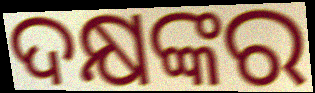
ଦକ୍ଷଙ୍କର